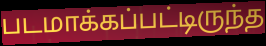
படமாக்கப்பட்டிருந்த